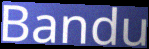
Bandu